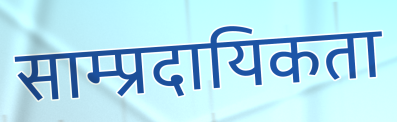
साम्प्रदायिकता